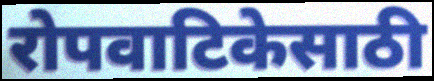
रोपवाटिकेसाठी